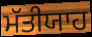
ਮੱਤੀਯਾਹ